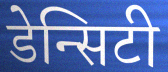
डेन्सिटी